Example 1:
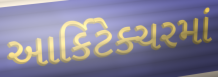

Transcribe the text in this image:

આર્કિટેક્ચરમાં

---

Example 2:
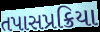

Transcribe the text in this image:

તપાસપ્રક્રિયા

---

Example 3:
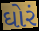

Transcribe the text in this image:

ઘોરં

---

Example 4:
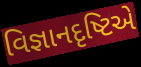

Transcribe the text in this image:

વિજ્ઞાનદૃષ્ટિએ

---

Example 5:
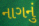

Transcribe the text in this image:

નાગનું